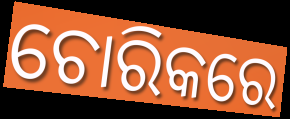
ଚୋରିକରେ